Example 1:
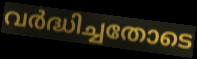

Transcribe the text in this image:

വർദ്ധിച്ചതോടെ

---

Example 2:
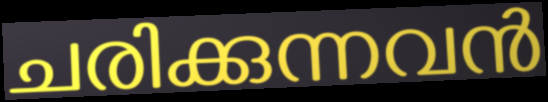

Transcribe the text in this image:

ചരിക്കുന്നവൻ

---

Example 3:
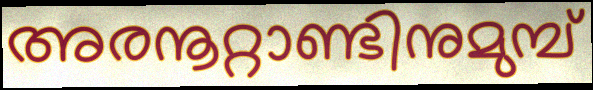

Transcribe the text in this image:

അരനൂറ്റാണ്ടിനുമുമ്പ്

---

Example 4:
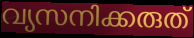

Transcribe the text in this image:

വ്യസനിക്കരുത്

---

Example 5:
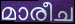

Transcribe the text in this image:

മാരീച